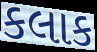
કલાક